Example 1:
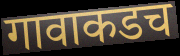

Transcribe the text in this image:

गावाकडच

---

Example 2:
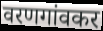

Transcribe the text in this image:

वरणगांवकर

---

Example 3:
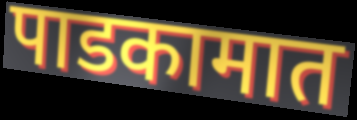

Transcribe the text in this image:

पाडकामात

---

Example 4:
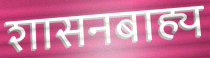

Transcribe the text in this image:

शासनबाह्य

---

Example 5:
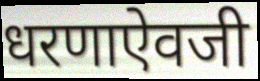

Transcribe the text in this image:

धरणाऐवजी